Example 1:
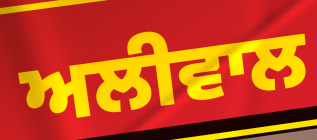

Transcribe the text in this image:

ਅਲੀਵਾਲ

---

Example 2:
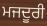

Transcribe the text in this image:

ਮਜਦੂਰੀ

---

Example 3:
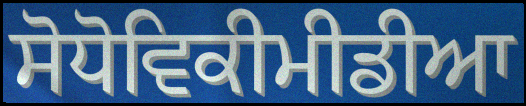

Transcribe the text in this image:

ਸੋਧੋਵਿਕੀਮੀਡੀਆ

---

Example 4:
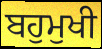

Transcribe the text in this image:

ਬਹੁਮੁਖੀ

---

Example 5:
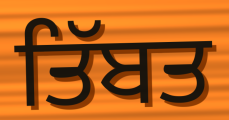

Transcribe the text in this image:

ਤਿੱਬਤ